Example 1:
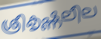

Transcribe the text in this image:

ശ്രീകൃഷ്ണലീല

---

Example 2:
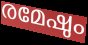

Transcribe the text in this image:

രമേഷും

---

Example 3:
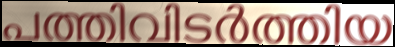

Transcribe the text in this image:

പത്തിവിടർത്തിയ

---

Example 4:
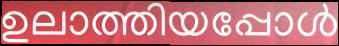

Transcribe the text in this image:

ഉലാത്തിയപ്പോൾ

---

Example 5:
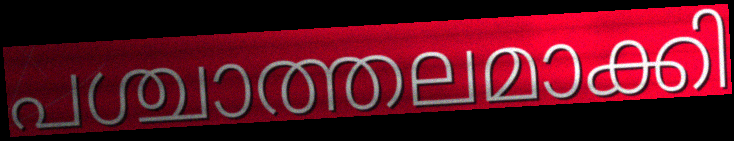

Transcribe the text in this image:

പശ്ചാത്തലമാക്കി